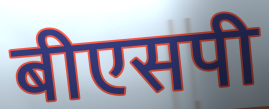
बीएसपी